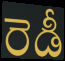
రెడీ